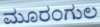
ಮೂರಂಗುಲ